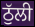
ਠੁੱਲੀ